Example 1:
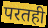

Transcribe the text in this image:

परतही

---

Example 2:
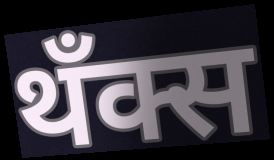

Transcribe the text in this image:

थँक्स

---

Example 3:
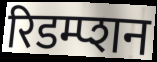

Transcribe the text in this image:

रिडम्प्शन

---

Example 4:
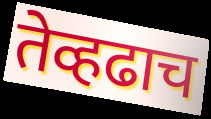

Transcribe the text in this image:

तेव्हढाच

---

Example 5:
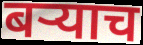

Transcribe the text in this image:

बर्‍याच